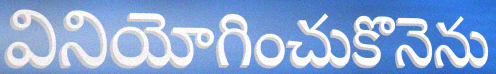
వినియోగించుకొనెను